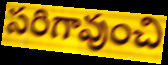
సరిగావుంచి